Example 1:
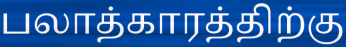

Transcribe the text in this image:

பலாத்காரத்திற்கு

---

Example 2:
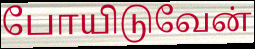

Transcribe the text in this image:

போயிடுவேன்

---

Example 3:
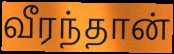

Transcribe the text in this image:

வீரந்தான்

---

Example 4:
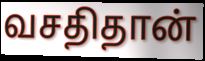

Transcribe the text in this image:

வசதிதான்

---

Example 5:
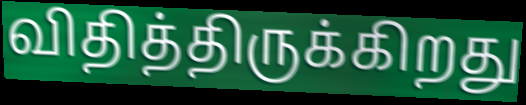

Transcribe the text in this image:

விதித்திருக்கிறது